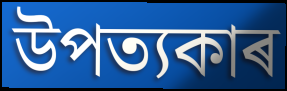
উপত্যকাৰ